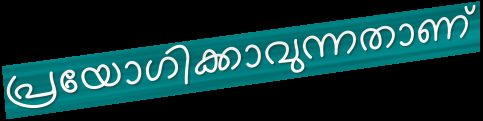
പ്രയോഗിക്കാവുന്നതാണ്